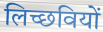
लिच्छवियों